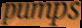
pumps